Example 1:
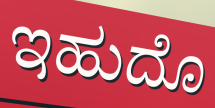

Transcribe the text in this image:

ಇಹುದೊ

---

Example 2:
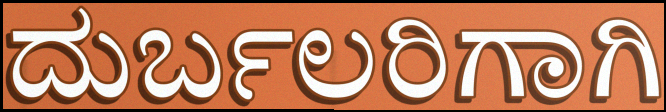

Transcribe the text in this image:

ದುರ್ಬಲರಿಗಾಗಿ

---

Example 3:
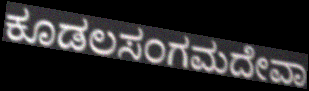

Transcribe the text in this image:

ಕೂಡಲಸಂಗಮದೇವಾ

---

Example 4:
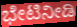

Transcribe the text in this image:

ಭೇಟಿನೀಡಿ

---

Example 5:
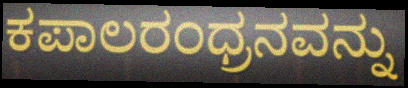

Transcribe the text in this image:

ಕಪಾಲರಂಧ್ರನವನ್ನು